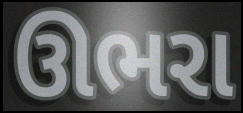
ઊભરા